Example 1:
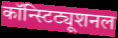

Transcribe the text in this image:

कॉन्स्टिट्यूशनल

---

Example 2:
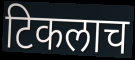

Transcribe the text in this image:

टिकलाच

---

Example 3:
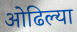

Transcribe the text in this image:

ओढिल्या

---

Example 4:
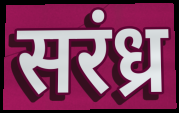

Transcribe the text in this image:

सरंध्र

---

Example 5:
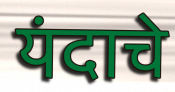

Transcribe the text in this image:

यंदाचे